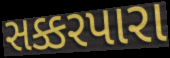
સક્કરપારા